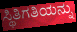
ಸ್ಥಿತಿಗತಿಯನ್ನು